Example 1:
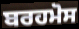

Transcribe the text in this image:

ਬਰਹਮੋਸ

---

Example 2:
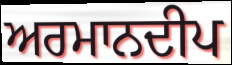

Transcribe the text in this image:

ਅਰਮਾਨਦੀਪ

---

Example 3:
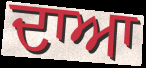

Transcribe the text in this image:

ਦਾਆ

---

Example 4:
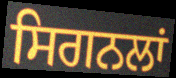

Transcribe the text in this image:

ਸਿਗਨਲਾਂ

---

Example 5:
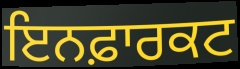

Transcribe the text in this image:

ਇਨਫ਼ਾਰਕਟ